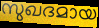
സുഖദമായ